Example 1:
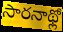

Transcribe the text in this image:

సారనాథ్లో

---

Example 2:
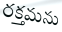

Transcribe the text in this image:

రక్తమను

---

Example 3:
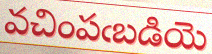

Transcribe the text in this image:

వచింపఁబడియె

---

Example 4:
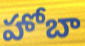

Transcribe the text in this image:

హోబా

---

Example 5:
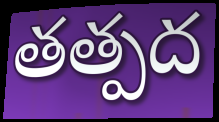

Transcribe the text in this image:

తత్పద